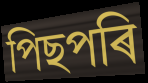
পিছপৰি